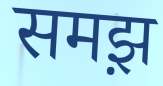
समझ़